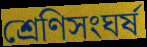
শ্রেণিসংঘর্ষ